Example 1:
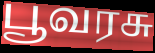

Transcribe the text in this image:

பூவரசு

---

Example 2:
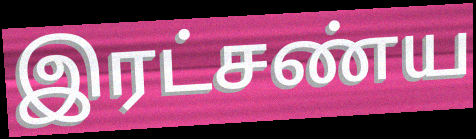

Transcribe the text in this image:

இரட்சண்ய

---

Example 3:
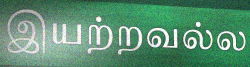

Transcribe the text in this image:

இயற்றவல்ல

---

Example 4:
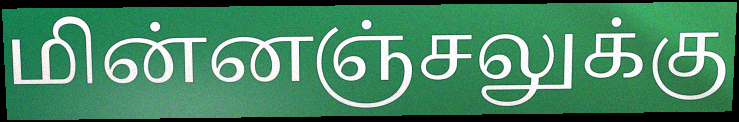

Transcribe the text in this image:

மின்னஞ்சலுக்கு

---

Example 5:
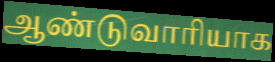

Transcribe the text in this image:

ஆண்டுவாரியாக